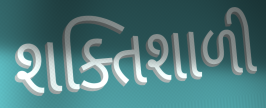
શક્તિશાળી